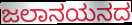
ಜಲಾನಯನದ